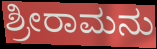
ಶ್ರೀರಾಮನು